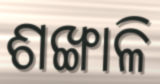
ଶଙ୍ଖାଳି